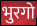
भुरगो